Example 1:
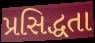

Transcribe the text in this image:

પ્રસિદ્ધતા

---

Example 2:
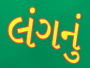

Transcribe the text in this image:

લંગનું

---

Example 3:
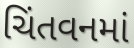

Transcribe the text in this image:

ચિંતવનમાં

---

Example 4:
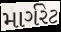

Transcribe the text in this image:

માર્ગરેટ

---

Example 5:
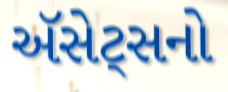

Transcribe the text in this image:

ઍસેટ્સનો